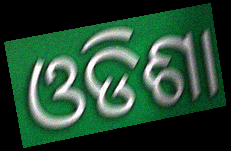
ଓଡିଶା